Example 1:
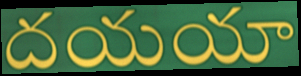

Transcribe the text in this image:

దయయా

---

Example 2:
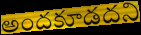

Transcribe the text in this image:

అందకూడదని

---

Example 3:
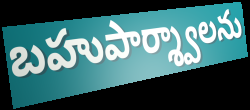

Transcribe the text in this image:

బహుపార్శ్వాలను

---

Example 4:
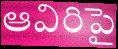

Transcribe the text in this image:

ఆవిరిపై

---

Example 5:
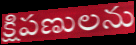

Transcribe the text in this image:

క్షిపణులను